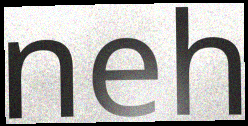
neh